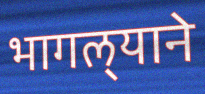
भागल्याने